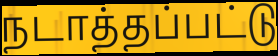
நடாத்தப்பட்டு